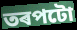
তৰপটো